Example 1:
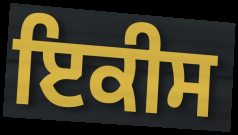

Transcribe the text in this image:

ਇਕੀਸ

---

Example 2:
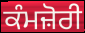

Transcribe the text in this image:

ਕੰਮਜ਼ੋਰੀ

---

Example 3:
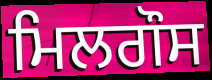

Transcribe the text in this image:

ਮਿਲਗੌਸ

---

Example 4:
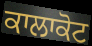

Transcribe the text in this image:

ਕਾਲਾਕੋਟ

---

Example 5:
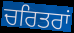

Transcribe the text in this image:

ਚਰਿਤਰਾਂ